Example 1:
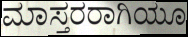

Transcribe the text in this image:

ಮಾಸ್ತರರಾಗಿಯೂ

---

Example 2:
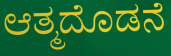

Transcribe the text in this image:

ಆತ್ಮದೊಡನೆ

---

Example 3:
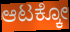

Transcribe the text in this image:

ಆಟಕ್ಕೋ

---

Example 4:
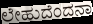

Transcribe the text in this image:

ಲೇಹುದೆಂದನಾ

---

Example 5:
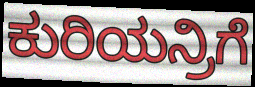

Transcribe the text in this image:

ಕುರಿಯನ್ರಿಗೆ